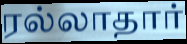
ரல்லாதார்